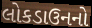
લોકડાઉનનો